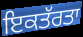
ਇਕਤੱਰਤਾ